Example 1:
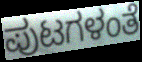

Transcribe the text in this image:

ಪುಟಗಳಂತೆ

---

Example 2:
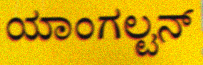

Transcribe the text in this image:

ಯಾಂಗಲ್ಟನ್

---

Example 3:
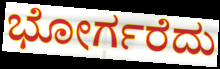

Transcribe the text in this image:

ಭೋರ್ಗರೆದು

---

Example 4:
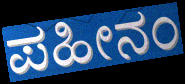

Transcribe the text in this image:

ಪಹೀನಂ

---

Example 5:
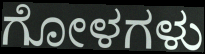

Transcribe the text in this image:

ಗೋಳಗಳು